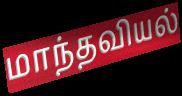
மாந்தவியல்